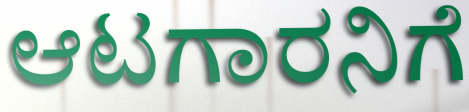
ಆಟಗಾರನಿಗೆ